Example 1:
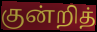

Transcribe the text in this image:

குன்றித்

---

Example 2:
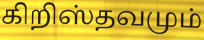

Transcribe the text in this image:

கிறிஸ்தவமும்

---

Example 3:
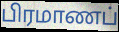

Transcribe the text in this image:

பிரமாணப்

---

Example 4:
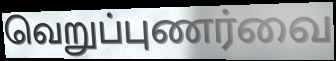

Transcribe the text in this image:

வெறுப்புணர்வை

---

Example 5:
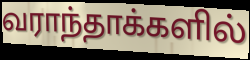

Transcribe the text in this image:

வராந்தாக்களில்